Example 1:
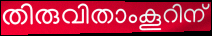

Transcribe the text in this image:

തിരുവിതാംകൂറിന്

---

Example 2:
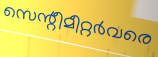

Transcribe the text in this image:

സെന്റീമീറ്റർവരെ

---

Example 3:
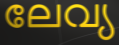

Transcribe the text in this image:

ലേവ്യ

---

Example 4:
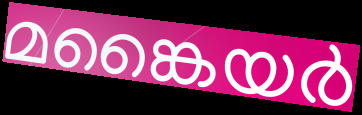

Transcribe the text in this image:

മങ്കൈയർ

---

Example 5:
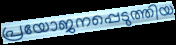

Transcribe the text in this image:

പ്രയോജനപ്പെടുത്തിയ